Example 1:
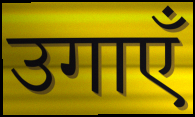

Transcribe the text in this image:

उगाएँ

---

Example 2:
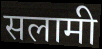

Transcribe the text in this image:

सलामी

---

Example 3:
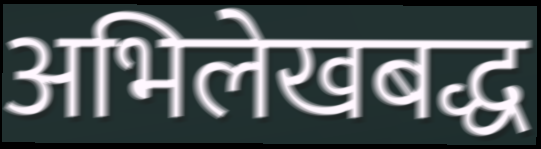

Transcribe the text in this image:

अभिलेखबद्ध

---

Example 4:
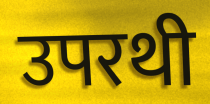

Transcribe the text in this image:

उपरथी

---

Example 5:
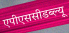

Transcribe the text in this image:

एपीएससीडब्ल्यू